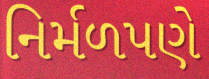
નિર્મળપણે